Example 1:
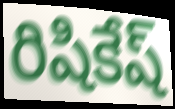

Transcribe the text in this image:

రిషికేష్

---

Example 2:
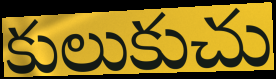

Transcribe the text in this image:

కులుకుచు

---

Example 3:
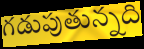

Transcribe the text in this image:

గడుపుతున్నది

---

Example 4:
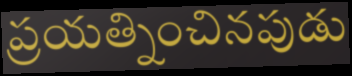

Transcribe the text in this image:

ప్రయత్నించినపుడు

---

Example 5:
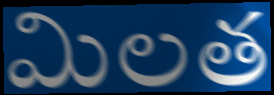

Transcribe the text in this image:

మిలత